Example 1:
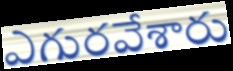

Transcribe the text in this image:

ఎగురవేశారు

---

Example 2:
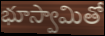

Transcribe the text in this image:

భూస్వామితో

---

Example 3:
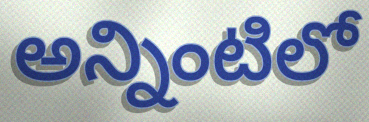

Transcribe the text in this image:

అన్నింటిలో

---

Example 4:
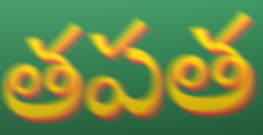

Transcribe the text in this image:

తపత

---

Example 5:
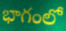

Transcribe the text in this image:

భాగంలో